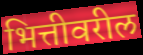
भित्तीवरील